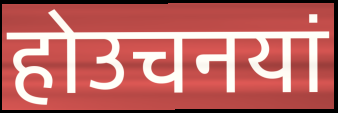
होउचनयां